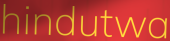
hindutwa